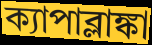
ক্যাপাব্লাঙ্কা